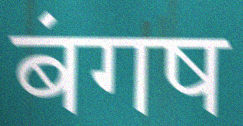
बंगष